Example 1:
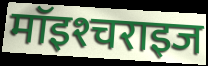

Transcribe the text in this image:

मॉइश्चराइज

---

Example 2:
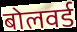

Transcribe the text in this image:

बोलवर्ड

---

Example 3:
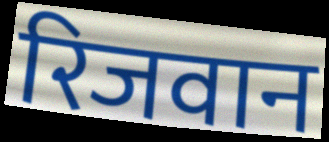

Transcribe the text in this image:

रिजवान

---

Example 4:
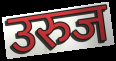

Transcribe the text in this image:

उरुज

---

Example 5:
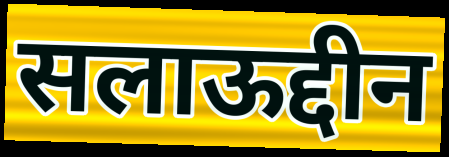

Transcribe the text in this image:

सलाऊद्दीन